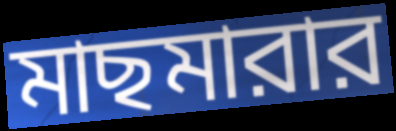
মাছমারার